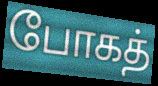
போகத்